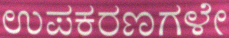
ಉಪಕರಣಗಳೇ